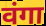
वंगा